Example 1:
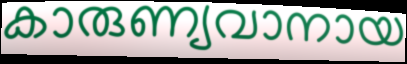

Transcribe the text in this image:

കാരുണ്യവാനായ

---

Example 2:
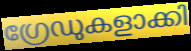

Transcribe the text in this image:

ഗ്രേഡുകളാക്കി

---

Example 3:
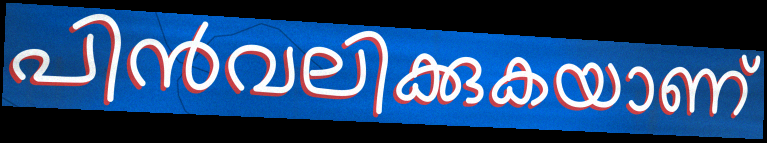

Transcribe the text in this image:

പിൻവലിക്കുകയാണ്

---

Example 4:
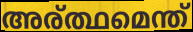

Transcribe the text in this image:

അര്ത്ഥമെന്ത്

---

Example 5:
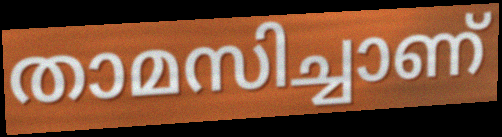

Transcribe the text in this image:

താമസിച്ചാണ്